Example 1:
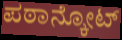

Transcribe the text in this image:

ಪಠಾನ್ಕೋಟ್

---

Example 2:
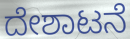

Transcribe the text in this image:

ದೇಶಾಟನೆ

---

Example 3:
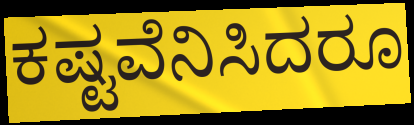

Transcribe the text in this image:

ಕಷ್ಟವೆನಿಸಿದರೂ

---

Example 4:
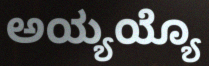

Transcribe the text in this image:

ಅಯ್ಯಯ್ಯೊ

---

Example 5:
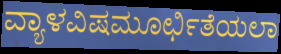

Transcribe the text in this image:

ವ್ಯಾಳವಿಷಮೂರ್ಛಿತೆಯಲಾ